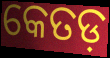
କେତଡ଼